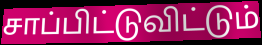
சாப்பிட்டுவிட்டும்